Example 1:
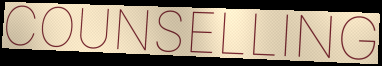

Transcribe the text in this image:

COUNSELLING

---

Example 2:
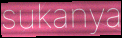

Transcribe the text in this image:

sukanya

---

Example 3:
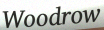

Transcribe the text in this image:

Woodrow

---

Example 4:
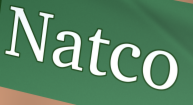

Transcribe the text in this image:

Natco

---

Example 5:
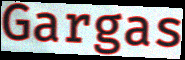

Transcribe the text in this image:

Gargas